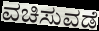
ವಚಿಸುವಡೆ